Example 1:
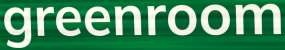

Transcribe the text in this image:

greenroom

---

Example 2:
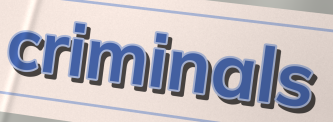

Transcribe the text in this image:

criminals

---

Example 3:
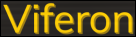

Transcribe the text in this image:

Viferon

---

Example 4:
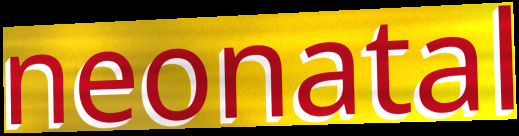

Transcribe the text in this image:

neonatal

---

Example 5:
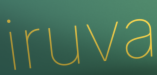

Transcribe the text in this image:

iruva